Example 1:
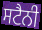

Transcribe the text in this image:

ਸਟੈਨੀ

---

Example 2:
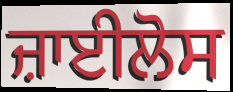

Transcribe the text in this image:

ਜ਼ਾਈਲੋਸ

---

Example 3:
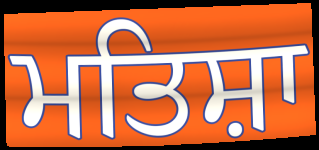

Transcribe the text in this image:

ਮਤਿਸ਼ਾ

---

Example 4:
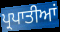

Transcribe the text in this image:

ਪ੍ਰਪਾਤੀਆਂ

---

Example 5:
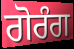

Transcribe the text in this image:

ਗੋਰੰਗ